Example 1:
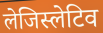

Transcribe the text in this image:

लेजिस्लेटिव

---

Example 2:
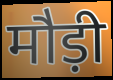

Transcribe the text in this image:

मौड़ी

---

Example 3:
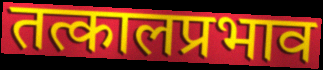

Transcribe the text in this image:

तत्कालप्रभाव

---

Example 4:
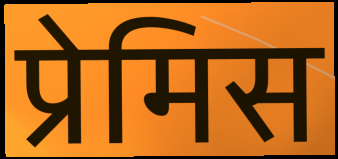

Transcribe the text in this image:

प्रेमिस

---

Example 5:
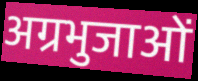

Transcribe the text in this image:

अग्रभुजाओं